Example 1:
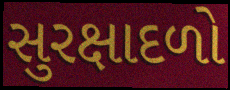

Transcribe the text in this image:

સુરક્ષાદળો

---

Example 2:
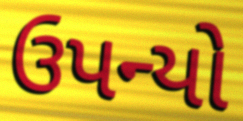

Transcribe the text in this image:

ઉપન્યો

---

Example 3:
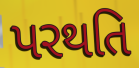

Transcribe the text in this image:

પરથતિ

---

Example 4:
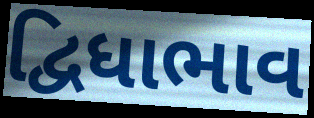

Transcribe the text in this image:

દ્વિધાભાવ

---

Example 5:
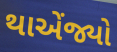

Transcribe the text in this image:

થાએંજ્યો